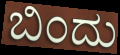
ಬಿಂದು